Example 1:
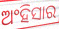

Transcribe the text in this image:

ଅଂହିସାର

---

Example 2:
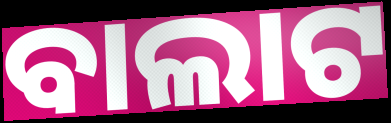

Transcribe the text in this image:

ବାଲାଟ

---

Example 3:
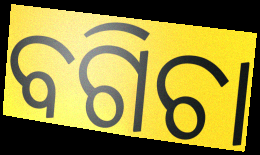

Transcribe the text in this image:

ବଗିଚା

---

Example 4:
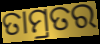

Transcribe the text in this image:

ତାମ୍ରତର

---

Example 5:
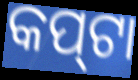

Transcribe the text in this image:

କପ୍‍ଟା